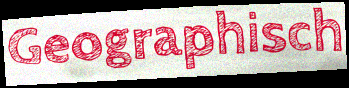
Geographisch